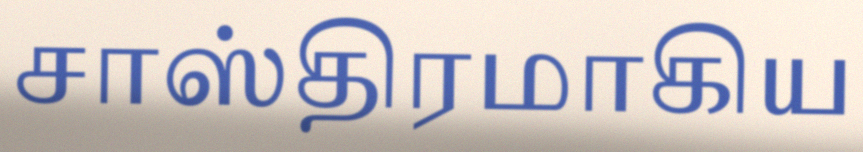
சாஸ்திரமாகிய